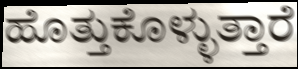
ಹೊತ್ತುಕೊಳ್ಳುತ್ತಾರೆ